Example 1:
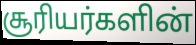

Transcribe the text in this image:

சூரியர்களின்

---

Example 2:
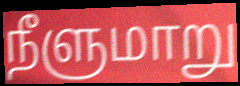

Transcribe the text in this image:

நீளுமாறு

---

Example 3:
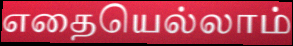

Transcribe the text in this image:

எதையெல்லாம்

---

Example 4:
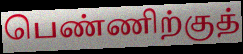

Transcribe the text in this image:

பெண்ணிற்குத்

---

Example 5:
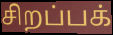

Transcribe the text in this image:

சிறப்பக்